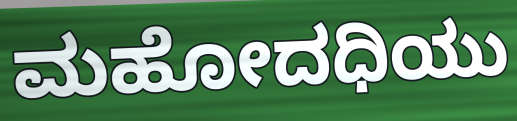
ಮಹೋದಧಿಯು